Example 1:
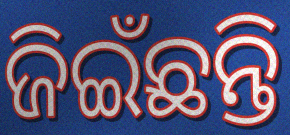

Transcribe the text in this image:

ଜିଇଁଛନ୍ତି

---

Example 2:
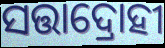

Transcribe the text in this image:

ସତ୍ତାଦ୍ରୋହୀ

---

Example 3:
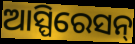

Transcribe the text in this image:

ଆସ୍ପିରେସନ୍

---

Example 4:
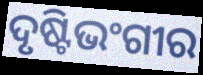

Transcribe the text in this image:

ଦୃଷ୍ଟିଭଂଗୀର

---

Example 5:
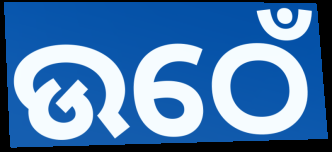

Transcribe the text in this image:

ଉଠେଁ